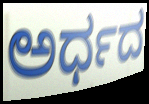
ಅರ್ಧದ